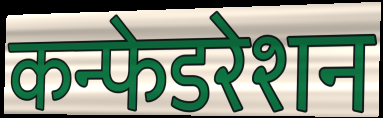
कन्‍फेडरेशन